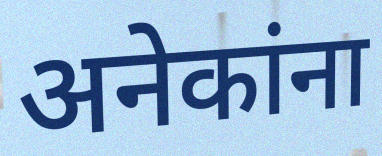
अनेकांना